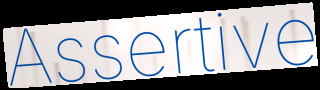
Assertive